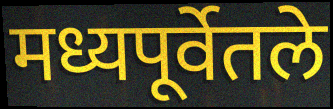
मध्यपूर्वेतले